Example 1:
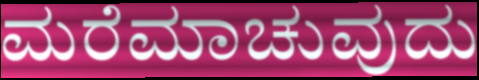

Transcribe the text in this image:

ಮರೆಮಾಚುವುದು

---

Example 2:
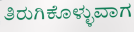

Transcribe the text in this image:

ತಿರುಗಿಕೊಳ್ಳುವಾಗ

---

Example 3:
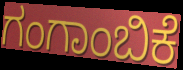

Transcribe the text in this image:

ಗಂಗಾಂಬಿಕೆ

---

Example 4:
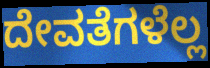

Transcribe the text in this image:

ದೇವತೆಗಳೆಲ್ಲ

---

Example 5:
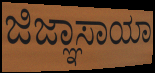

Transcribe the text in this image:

ಜಿಜ್ಞಾಸಾಯಾ